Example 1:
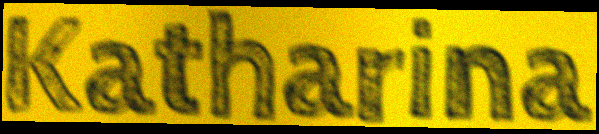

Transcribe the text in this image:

Katharina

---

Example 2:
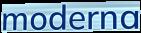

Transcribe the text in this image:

moderna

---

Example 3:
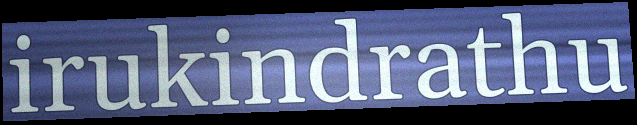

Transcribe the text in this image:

irukindrathu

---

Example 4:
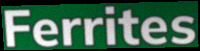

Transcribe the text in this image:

Ferrites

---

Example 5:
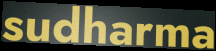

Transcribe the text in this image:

sudharma